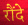
रौंदे